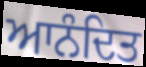
ਆਨੰਦਿਤ